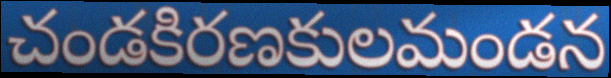
చండకిరణకులమండన